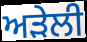
ਅੜੇਲੀ